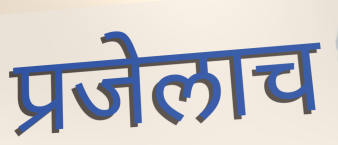
प्रजेलाच